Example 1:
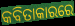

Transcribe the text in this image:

କବିତାକାରରେ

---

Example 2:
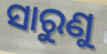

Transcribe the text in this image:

ସାରୁଣୁ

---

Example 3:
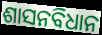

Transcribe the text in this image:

ଶାସନବିଧାନ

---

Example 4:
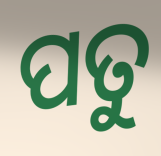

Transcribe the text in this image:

ପତୁ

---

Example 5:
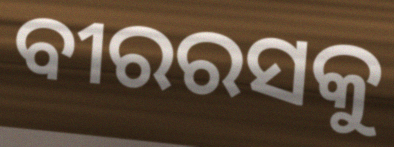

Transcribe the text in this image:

ବୀରରସକୁ